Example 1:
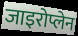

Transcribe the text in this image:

जाइरोप्लेन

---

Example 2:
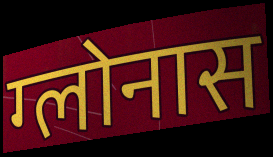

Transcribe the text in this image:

ग्लोनास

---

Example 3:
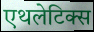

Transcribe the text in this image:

एथलेटिक्‍स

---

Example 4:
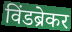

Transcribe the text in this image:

विंडब्रेकर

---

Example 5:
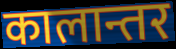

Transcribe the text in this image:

कालान्तर